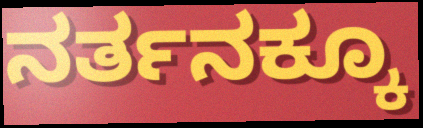
ನರ್ತನಕ್ಕೂ